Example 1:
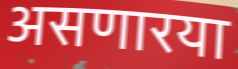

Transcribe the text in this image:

असणारया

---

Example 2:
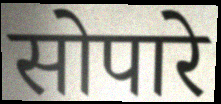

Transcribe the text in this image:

सोपारे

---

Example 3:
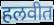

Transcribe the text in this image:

हलवीत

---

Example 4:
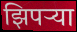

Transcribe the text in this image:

झिपऱ्या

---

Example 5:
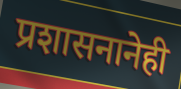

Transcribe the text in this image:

प्रशासनानेही